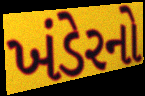
ખંડેરનો